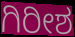
ಗಿರೀಶ